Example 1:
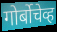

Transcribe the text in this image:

गोर्बोचेव्ह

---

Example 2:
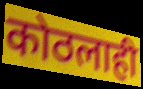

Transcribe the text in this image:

कोठलाही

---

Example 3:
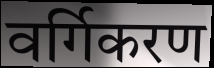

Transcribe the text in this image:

वर्गिकरण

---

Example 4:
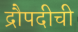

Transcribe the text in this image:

द्रौपदीची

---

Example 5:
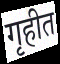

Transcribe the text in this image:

गृहीत